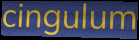
cingulum